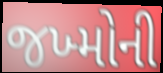
જખ્મોની